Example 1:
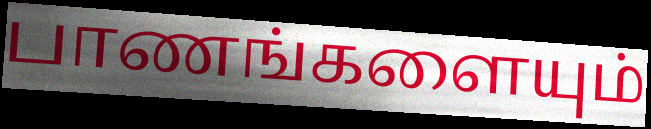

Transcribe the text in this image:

பாணங்களையும்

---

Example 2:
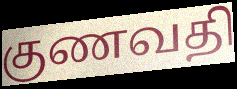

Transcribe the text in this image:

குணவதி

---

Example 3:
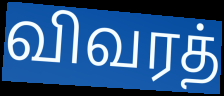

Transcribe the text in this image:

விவரத்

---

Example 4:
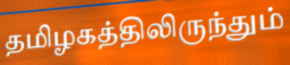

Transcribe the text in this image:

தமிழகத்திலிருந்தும்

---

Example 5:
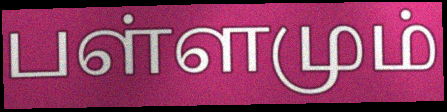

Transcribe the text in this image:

பள்ளமும்